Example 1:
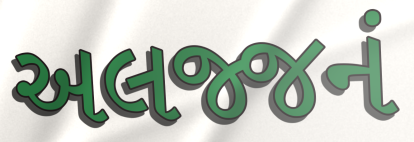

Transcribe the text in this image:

અલજ્જનં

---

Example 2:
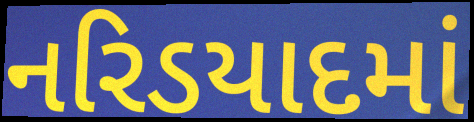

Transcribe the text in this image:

નરિડયાદમાં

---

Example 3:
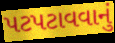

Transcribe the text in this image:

પટપટાવવાનું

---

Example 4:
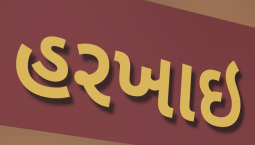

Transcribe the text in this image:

હરખાઇ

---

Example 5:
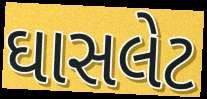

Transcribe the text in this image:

ઘાસલેટ